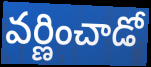
వర్ణించాడో